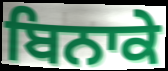
ਬਿਨਾਕੇ